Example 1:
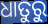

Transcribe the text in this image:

ଧାତୁରୁ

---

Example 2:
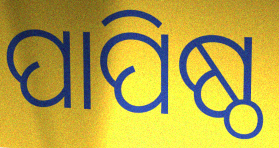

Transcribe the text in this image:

ପାପିଷ୍ଠ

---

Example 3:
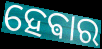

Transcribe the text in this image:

ହେଵାର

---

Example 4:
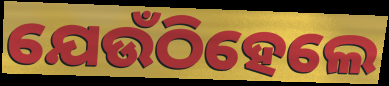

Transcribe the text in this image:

ଯେଉଁଠିହେଲେ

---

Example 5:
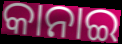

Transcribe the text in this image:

କାନାଇ